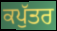
ਕਪੁੱਤਰ